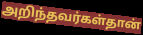
அறிந்தவர்கள்தான்